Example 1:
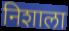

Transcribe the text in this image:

निशाला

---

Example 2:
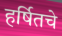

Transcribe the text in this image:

हर्षितचे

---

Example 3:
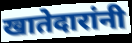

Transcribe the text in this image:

खातेदारांनी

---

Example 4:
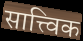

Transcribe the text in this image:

सात्त्विक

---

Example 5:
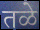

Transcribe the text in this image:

तळे